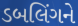
ડબલિંગને